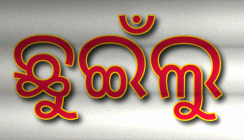
ଛୁଇଁଲୁ